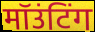
मॉउंटिंग